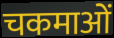
चकमाओं